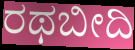
ರಥಬೀದಿ